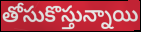
తోసుకొస్తున్నాయి